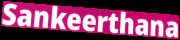
Sankeerthana